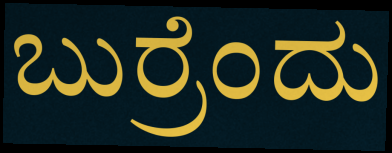
ಬುರ್ರೆಂದು